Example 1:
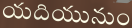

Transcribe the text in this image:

యదియునుం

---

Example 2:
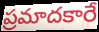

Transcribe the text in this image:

ప్రమాదకారే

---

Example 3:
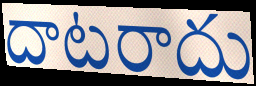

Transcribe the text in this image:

దాటరాదు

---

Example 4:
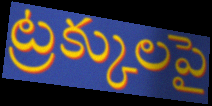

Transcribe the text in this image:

ట్రక్కులపై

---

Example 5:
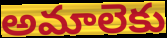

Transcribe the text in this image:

అమాలెకు